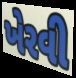
ખેરવી